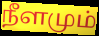
நீளமும்